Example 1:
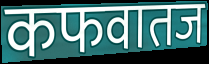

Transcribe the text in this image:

कफवातज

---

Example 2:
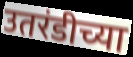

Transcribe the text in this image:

उतरंडीच्या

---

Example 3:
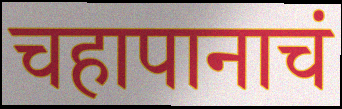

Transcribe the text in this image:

चहापानाचं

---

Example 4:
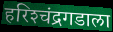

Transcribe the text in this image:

हरिश्चंद्रगडाला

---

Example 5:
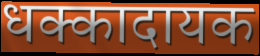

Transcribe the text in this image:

धक्‍कादायक